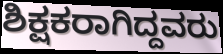
ಶಿಕ್ಷಕರಾಗಿದ್ದವರು